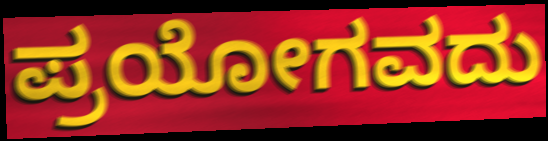
ಪ್ರಯೋಗವದು